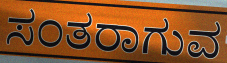
ಸಂತರಾಗುವ